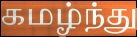
கமழ்ந்து